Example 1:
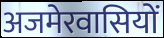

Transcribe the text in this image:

अजमेरवासियों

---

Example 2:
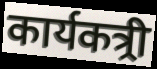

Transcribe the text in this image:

कार्यकत्र्री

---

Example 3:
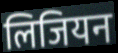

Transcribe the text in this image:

लिजियन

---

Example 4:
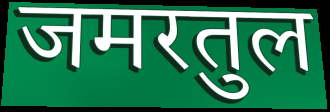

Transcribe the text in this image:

जमरतुल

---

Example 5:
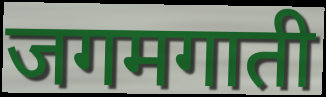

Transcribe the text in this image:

जगमगाती